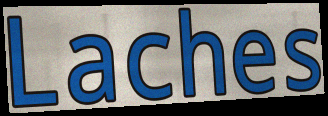
Laches